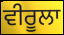
ਵੀਰੂਲਾ